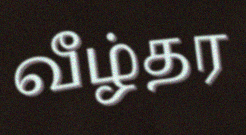
வீழ்தர